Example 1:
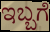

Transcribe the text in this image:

ಇಬ್ಬಗೆ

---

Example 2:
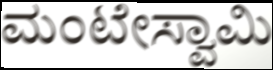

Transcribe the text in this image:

ಮಂಟೇಸ್ವಾಮಿ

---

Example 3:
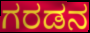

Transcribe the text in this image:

ಗರಡನ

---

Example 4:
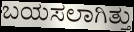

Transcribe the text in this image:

ಬಯಸಲಾಗಿತ್ತು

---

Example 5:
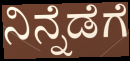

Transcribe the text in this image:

ನಿನ್ನೆಡೆಗೆ